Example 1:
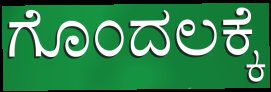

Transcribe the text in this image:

ಗೊಂದಲಕ್ಕೆ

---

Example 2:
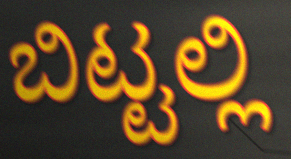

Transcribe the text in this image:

ಬಿಟ್ಟಲ್ಲಿ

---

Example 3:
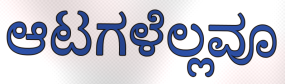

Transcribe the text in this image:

ಆಟಗಳೆಲ್ಲವೂ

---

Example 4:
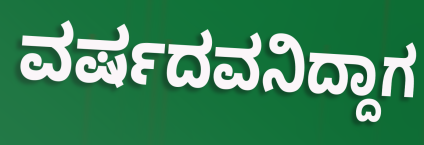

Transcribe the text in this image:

ವರ್ಷದವನಿದ್ದಾಗ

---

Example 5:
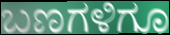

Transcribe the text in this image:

ಬಣಗಳಿಗೂ